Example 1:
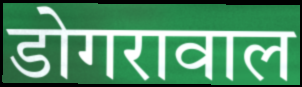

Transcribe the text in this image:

डोगरावाल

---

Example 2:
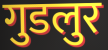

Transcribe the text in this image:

गुडलुर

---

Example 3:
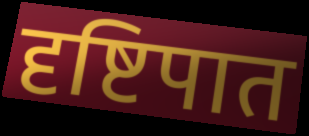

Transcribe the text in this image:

दृष्टिपात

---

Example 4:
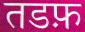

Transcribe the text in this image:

तडफ़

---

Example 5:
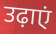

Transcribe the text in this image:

उढ़ाएं